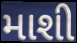
માશી